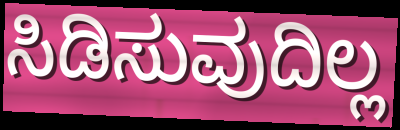
ಸಿಡಿಸುವುದಿಲ್ಲ